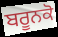
ਬਰੂਨਕੋ